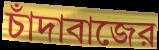
চাঁদাবাজের